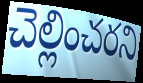
చెల్లించరని